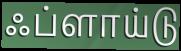
ஃப்ளாய்டு